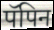
पॅपिन